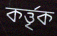
কর্ত্তৃক